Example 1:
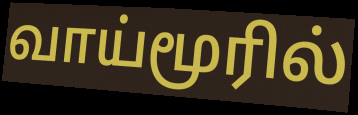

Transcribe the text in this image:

வாய்மூரில்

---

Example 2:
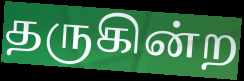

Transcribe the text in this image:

தருகின்ற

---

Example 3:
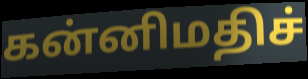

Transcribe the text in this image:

கன்னிமதிச்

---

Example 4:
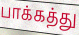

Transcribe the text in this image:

பாக்கத்து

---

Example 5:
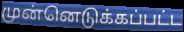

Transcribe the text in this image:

முன்னெடுக்கப்பட்ட